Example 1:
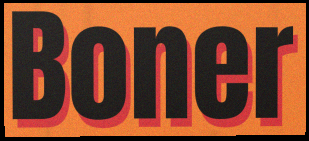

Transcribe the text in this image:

Boner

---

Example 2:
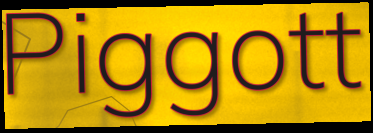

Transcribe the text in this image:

Piggott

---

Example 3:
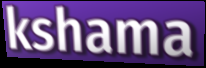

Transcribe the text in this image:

kshama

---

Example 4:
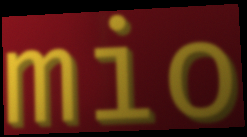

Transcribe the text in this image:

mio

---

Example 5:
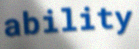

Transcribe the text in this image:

ability